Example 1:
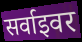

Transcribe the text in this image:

सर्वाइवर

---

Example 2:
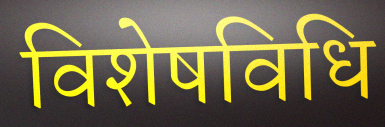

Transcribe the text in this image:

विशेषविधि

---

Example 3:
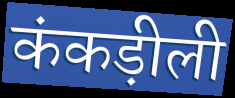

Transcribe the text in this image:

कंकड़ीली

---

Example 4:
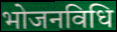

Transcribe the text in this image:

भोजनविधि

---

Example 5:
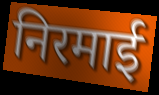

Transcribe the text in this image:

निरमाई